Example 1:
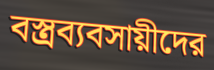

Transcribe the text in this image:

বস্ত্রব্যবসায়ীদের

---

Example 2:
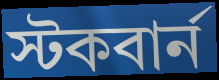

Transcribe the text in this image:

স্টকবার্ন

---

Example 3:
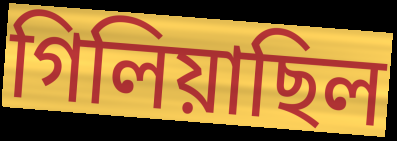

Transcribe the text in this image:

গিলিয়াছিল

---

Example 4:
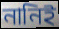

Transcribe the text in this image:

নানিই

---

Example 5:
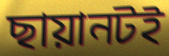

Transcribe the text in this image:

ছায়ানটই